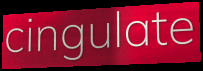
cingulate